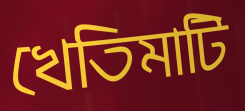
খেতিমাটি